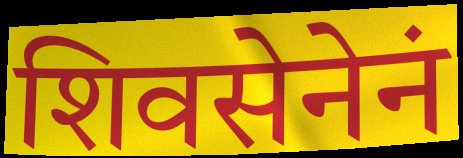
शिवसेनेनं